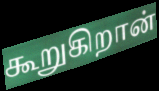
கூறுகிறான்